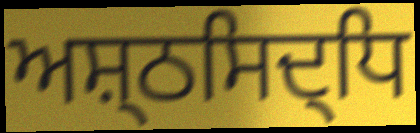
ਅਸ਼੍ਠਸਿਦ੍ਧਿ